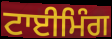
ਟਾਈਮਿੰਗ